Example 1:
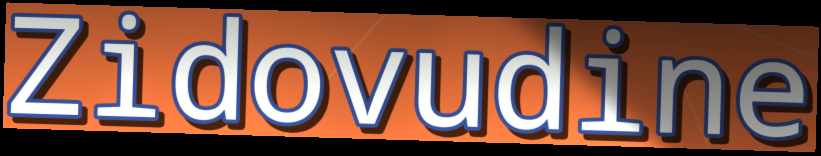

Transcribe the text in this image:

Zidovudine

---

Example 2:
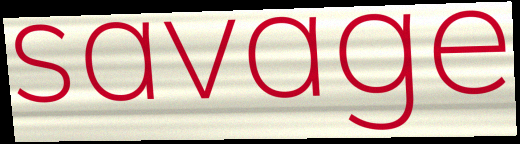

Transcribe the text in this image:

savage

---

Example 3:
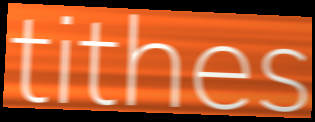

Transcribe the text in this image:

tithes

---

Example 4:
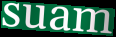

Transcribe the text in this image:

suam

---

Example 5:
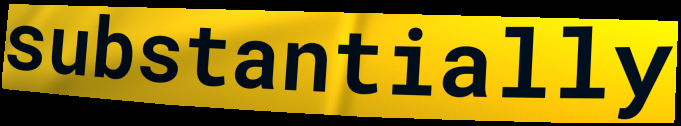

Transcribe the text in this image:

substantially